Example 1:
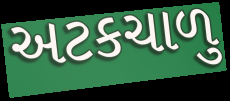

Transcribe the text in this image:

અટકચાળુ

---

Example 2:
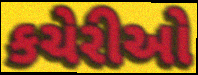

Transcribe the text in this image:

કચેરીઓ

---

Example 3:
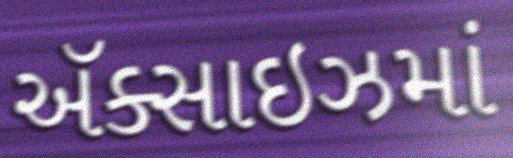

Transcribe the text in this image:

ઍક્સાઇઝમાં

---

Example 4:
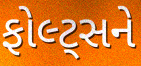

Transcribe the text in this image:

ફોલ્ટ્સને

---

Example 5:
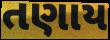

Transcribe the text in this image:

તણાય